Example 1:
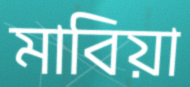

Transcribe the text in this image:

মাবিয়া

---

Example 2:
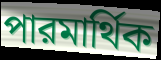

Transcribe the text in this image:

পারমার্থিক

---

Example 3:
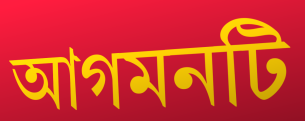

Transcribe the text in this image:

আগমনটি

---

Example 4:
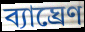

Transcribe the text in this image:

ব্যাঘ্রেণ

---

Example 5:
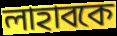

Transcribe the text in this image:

লাহাবকে